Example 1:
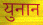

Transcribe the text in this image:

युनान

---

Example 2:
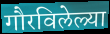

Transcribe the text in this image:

गौरविलेल्या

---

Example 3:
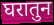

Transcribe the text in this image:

घरातुन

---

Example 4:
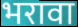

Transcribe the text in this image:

भरावा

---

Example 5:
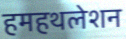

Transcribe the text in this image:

हमहथलेशन